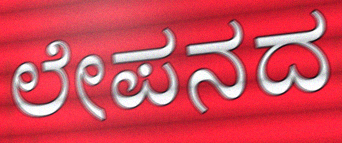
ಲೇಪನದ